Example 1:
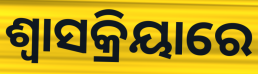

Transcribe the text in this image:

ଶ୍ୱାସକ୍ରିୟାରେ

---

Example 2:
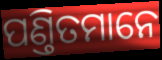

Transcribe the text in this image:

ପଣ୍ତିତମାନେ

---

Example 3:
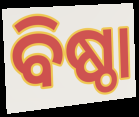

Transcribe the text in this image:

ବିଷ୍ଠା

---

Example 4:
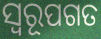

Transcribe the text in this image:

ସ୍ଵରୂପଗତ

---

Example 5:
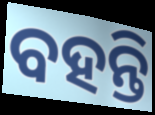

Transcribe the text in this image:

ବହନ୍ତି